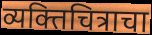
व्यक्तिचित्राचा